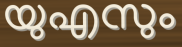
യുഎസും